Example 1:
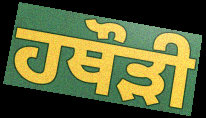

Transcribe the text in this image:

ਹਥੌੜੀ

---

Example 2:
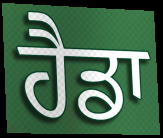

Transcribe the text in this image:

ਹੈਡਾ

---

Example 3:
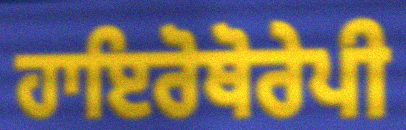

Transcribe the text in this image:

ਹਾਇਰੋਥੋਰੇਪੀ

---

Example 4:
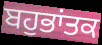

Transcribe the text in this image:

ਬਹੁਭਾਂਤਕ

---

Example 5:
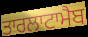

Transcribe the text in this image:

ਤਾਰਲਾਟਾਮੈਬ